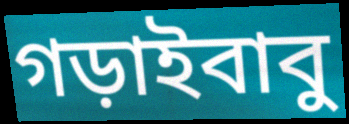
গড়াইবাবু